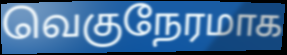
வெகுநேரமாக